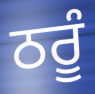
ਠਰੂੰ